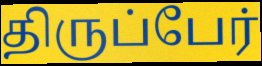
திருப்பேர்